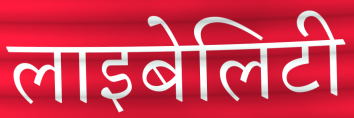
लाइबेलिटी